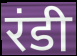
रंडी